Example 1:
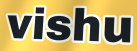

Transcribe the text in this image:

vishu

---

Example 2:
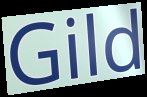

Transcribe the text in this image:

Gild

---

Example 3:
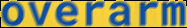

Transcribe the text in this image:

overarm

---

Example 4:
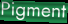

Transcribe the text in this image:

Pigment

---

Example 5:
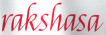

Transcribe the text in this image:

rakshasa